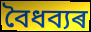
বৈধব্যৰ